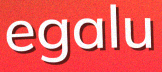
egalu